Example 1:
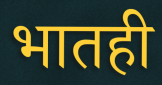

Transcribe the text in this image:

भातही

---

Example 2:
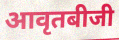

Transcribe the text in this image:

आवृतबीजी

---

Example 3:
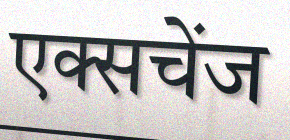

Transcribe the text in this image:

एक्सचेंज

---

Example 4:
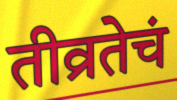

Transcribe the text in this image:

तीव्रतेचं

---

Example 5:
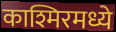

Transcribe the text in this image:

काश्मिरमध्ये